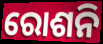
ରୋଶନି